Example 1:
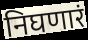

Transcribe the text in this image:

निघणारं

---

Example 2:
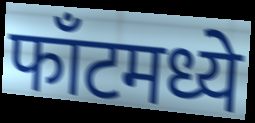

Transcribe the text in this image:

फाँटमध्ये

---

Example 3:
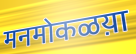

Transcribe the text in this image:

मनमोकळय़ा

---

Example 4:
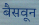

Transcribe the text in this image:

बैसवून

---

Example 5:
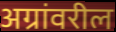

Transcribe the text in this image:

अग्रांवरील